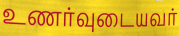
உணர்வுடையவர்